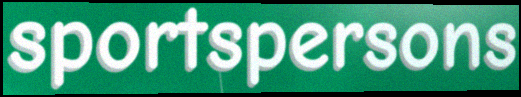
sportspersons